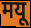
मयू